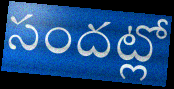
సందట్లో